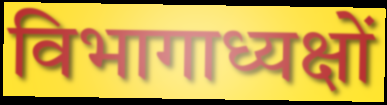
विभागाध्‍यक्षों